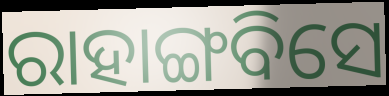
ରାହାଙ୍ଗବିସେ